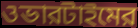
ওভারটাইমের